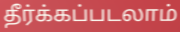
தீர்க்கப்படலாம்